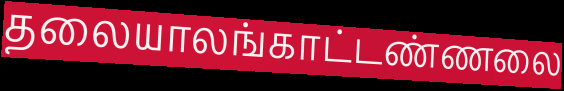
தலையாலங்காட்டண்ணலை